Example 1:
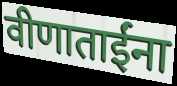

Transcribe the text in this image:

वीणाताईंना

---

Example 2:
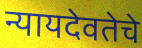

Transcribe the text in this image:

न्यायदेवतेचे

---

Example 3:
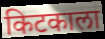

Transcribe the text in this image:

किटकाला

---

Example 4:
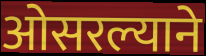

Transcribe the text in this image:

ओसरल्याने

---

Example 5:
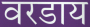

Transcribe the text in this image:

वरडाय